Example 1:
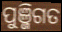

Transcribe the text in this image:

ପୁଞ୍ଜିଗତ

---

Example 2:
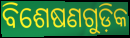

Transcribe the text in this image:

ବିଶେଷଣଗୁଡ଼ିକ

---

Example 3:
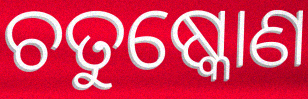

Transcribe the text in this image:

ଚତୁଷ୍କୋଣ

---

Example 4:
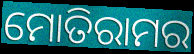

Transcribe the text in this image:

ମୋତିରାମର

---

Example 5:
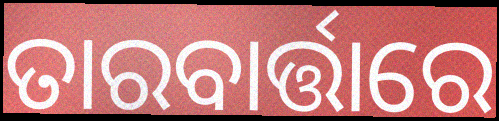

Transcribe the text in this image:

ତାରବାର୍ତ୍ତାରେ